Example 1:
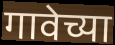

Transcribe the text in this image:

गावेच्या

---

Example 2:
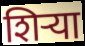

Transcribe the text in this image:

शिर्‍या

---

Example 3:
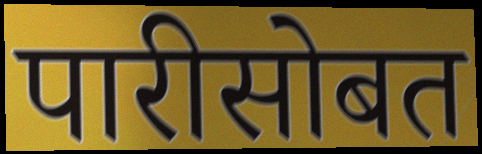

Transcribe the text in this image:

पारीसोबत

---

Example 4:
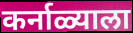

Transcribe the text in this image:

कर्नाळ्याला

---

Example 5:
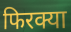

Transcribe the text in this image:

फिरक्या